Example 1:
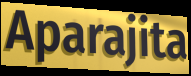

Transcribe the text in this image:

Aparajita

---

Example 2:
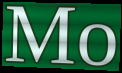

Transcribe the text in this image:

Mo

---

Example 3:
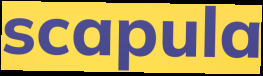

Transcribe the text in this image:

scapula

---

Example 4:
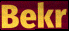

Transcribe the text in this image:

Bekr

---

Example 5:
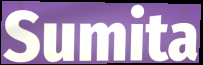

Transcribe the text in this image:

Sumita